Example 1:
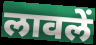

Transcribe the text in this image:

लावलें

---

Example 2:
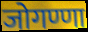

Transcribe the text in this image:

जोगण्णा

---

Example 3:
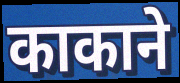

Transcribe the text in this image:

काकाने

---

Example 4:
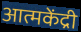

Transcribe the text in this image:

आत्मकेंद्री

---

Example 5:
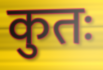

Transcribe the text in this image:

कुतः